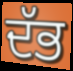
ਦੱਭ